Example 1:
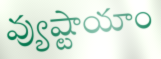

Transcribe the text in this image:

వ్యుష్టాయాం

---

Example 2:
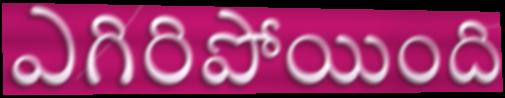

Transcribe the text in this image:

ఎగిరిపోయింది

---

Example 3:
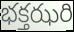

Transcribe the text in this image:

భక్తఝరి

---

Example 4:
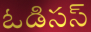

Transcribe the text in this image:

ఓడిసస్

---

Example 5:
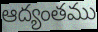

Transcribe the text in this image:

ఆద్యంతము